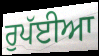
ਰੁਪੱਈਆ